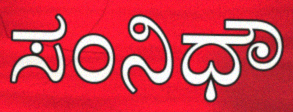
ಸಂನಿಧೌ